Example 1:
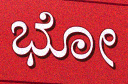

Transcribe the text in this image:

ಭೋ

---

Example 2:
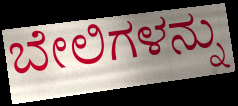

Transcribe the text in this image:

ಬೇಲಿಗಳನ್ನು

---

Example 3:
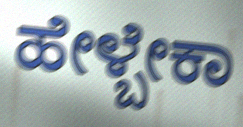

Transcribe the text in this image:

ಹೇಳ್ಬೇಕಾ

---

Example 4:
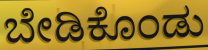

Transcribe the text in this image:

ಬೇಡಿಕೊಂಡು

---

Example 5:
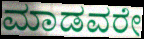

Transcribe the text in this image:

ಮಾಡವರೇ